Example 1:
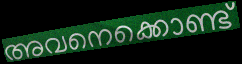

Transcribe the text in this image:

അവനെക്കൊണ്ട്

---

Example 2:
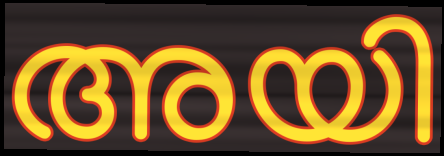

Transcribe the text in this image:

അയി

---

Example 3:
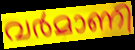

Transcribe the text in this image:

വർമാണി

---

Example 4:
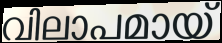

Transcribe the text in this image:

വിലാപമായ്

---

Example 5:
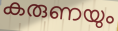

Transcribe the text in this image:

കരുണയും